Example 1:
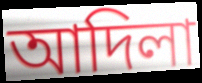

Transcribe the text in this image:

আদিলা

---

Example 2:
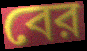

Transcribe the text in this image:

বের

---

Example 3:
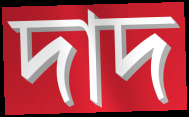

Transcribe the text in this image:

দাদ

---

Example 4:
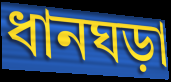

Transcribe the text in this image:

ধানঘড়া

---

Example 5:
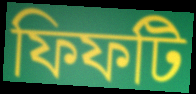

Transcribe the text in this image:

ফিফটি